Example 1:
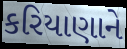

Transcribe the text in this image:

કરિયાણાને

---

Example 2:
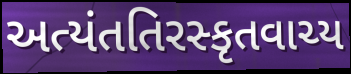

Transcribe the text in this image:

અત્યંતતિરસ્કૃતવાચ્ય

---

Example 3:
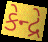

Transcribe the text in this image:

કેન્દ્રે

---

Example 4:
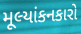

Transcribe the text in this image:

મૂલ્યાંકનકારો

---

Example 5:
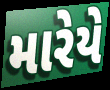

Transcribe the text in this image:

મારેયે